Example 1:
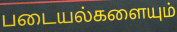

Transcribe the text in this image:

படையல்களையும்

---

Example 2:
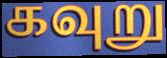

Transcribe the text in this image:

கவுறு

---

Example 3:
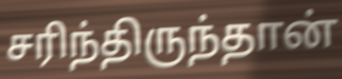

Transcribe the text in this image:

சரிந்திருந்தான்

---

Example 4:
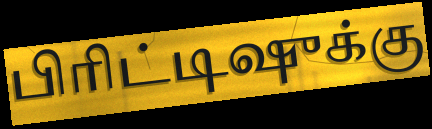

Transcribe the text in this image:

பிரிட்டிஷுக்கு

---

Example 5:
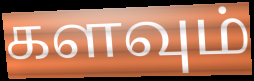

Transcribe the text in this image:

களவும்